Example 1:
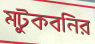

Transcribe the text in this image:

মটুকবনির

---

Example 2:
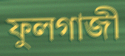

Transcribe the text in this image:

ফুলগাজী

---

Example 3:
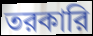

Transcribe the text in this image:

তরকারি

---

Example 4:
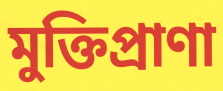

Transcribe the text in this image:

মুক্তিপ্রাণা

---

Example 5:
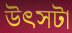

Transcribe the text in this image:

উৎসটা